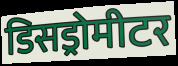
डिसड्रोमीटर